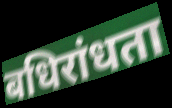
बधिरांधता